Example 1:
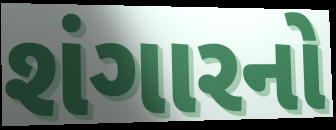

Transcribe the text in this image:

શંગારનો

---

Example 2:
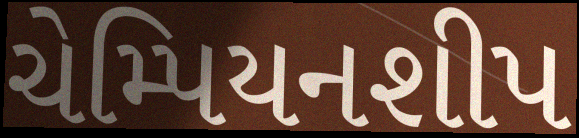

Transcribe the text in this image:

ચેમ્પિયનશીપ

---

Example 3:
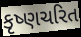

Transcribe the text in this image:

કૃષ્ણચરિત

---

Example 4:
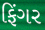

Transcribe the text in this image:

ફિંગર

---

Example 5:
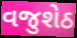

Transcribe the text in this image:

વજુશેઠ